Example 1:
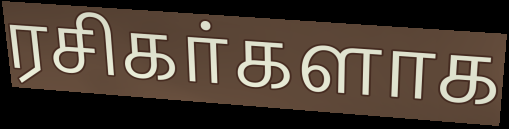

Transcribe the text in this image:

ரசிகர்களாக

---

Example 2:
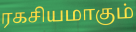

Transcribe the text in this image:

ரகசியமாகும்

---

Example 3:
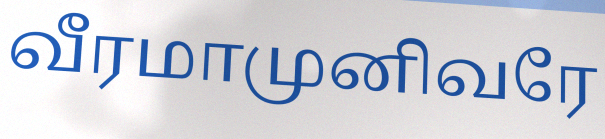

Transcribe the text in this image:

வீரமாமுனிவரே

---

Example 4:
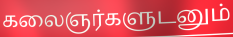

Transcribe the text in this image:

கலைஞர்களுடனும்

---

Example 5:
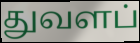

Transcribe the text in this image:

துவளப்